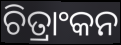
ଚିତ୍ରାଂକନ